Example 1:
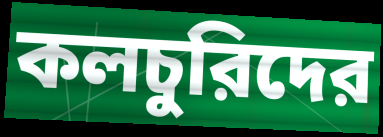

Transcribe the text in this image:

কলচুরিদের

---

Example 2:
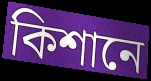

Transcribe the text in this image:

কিশানে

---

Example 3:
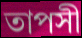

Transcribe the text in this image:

তাপসী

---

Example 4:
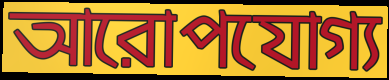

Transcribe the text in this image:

আরোপযোগ্য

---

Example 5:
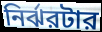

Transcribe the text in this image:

নির্ঝরটার